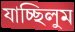
যাচ্ছিলুম